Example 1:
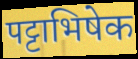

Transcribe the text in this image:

पट्टाभिषेक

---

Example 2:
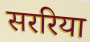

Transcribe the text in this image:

सररिया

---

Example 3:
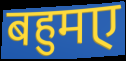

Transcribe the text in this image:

बहुमए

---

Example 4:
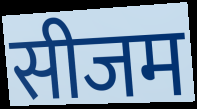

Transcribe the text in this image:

सीजम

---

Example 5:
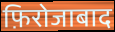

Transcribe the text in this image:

फ़िरोजाबाद